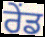
ਰੇਂਡ